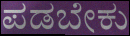
ಪಡಬೇಕು